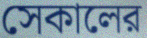
সেকালের